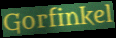
Gorfinkel